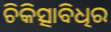
ଚିକିତ୍ସାବିଧିର